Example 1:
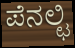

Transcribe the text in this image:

ಪೆನಲ್ಟಿ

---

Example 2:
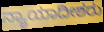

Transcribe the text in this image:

ನ್ಯಾಯಾದೀಶರು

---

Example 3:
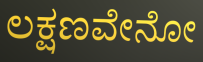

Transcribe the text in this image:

ಲಕ್ಷಣವೇನೋ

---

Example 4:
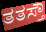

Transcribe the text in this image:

ತತಸ್ತೌ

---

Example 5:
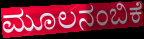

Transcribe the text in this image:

ಮೂಲನಂಬಿಕೆ